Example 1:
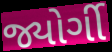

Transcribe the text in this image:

જ્યોર્ગી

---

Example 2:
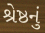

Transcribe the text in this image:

શ્રેષ્ઠનું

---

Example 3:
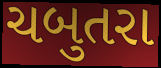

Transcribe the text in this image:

ચબુતરા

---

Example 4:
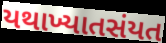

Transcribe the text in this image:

યથાખ્યાતસંયત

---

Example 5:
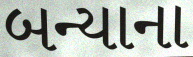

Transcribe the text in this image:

બન્યાના